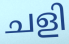
ചളി